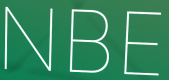
NBE